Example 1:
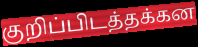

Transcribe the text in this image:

குறிப்பிடத்தக்கன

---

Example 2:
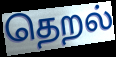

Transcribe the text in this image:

தெறல்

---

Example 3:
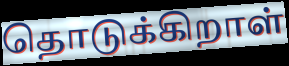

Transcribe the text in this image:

தொடுக்கிறாள்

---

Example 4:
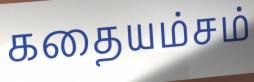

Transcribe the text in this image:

கதையம்சம்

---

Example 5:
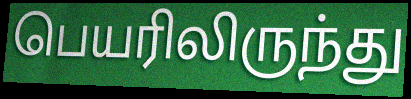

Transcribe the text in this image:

பெயரிலிருந்து